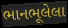
ભાનભૂલેલા